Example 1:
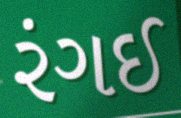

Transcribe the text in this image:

રંગઈ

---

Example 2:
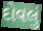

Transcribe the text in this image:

દોવલું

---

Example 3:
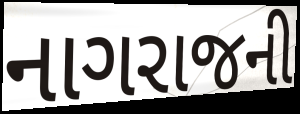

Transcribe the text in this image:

નાગરાજની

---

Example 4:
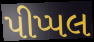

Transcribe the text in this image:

પીપ્પલ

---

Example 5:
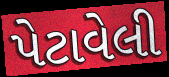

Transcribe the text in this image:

પેટાવેલી